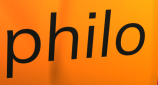
philo